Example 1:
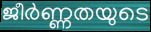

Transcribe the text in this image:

ജീർണ്ണതയുടെ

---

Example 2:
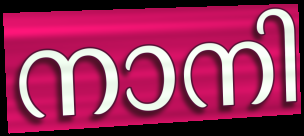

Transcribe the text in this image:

നാനി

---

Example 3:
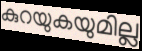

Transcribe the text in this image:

കുറയുകയുമില്ല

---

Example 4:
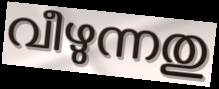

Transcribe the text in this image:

വീഴുന്നതു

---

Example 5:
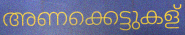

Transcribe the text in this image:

അണക്കെട്ടുകള്